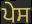
ਪੇਸ